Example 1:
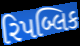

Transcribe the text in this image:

રિપબ્લિક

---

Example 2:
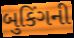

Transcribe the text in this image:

બુકિંગની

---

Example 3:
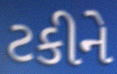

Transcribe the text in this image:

ટકીને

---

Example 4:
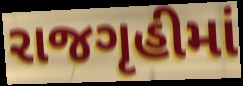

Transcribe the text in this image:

રાજગૃહીમાં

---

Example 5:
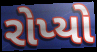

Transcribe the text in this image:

રોપ્યો